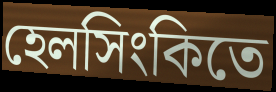
হেলসিংকিতে